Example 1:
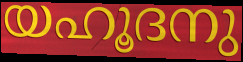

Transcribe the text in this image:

യഹൂദനു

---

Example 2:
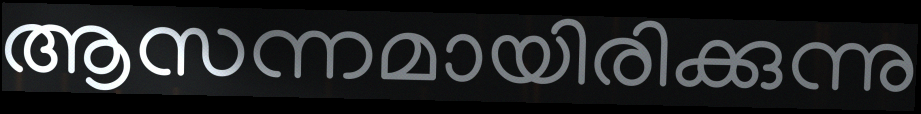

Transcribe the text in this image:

ആസന്നമായിരിക്കുന്നു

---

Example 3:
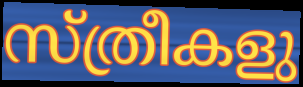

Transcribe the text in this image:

സ്ത്രീകളു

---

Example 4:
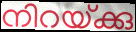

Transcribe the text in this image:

നിറയ്‌ക്കു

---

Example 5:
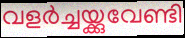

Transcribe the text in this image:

വളർച്ചയ്ക്കുവേണ്ടി